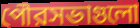
পৌরসভাগুলো